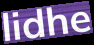
lidhe